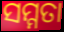
ସମ୍ମତା